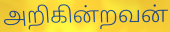
அறிகின்றவன்